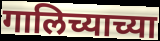
गालिच्याच्या